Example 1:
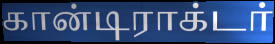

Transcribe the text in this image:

கான்டிராக்டர்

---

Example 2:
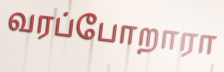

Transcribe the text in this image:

வரப்போறாரா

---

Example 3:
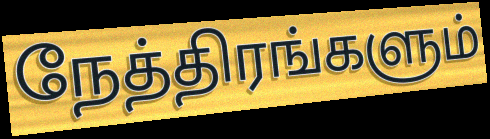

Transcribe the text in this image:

நேத்திரங்களும்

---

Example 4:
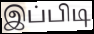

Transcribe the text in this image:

இப்பிடி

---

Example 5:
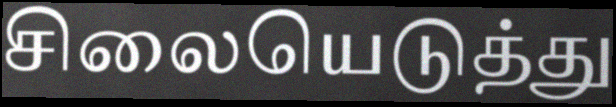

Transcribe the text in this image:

சிலையெடுத்து